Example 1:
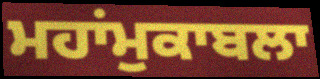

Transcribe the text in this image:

ਮਹਾਂਮੁਕਾਬਲਾ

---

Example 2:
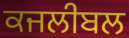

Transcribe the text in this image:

ਕਜਲੀਬਲ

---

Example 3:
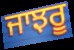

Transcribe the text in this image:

ਜਾਝਰੂ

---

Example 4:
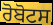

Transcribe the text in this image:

ਰੋਬੋਟਸ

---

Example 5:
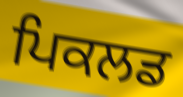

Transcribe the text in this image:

ਪਿਕਲਡ